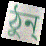
ঠুন্